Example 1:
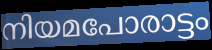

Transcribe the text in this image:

നിയമപോരാട്ടം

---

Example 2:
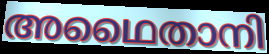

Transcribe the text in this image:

അഥൈതാനി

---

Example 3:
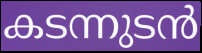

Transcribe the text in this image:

കടന്നുടൻ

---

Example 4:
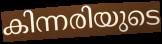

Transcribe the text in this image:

കിന്നരിയുടെ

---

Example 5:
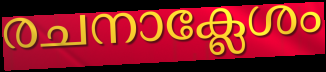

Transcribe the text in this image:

രചനാക്ലേശം